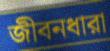
জীবনধারা